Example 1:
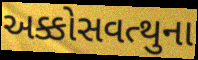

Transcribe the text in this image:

અક્કોસવત્થુના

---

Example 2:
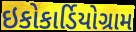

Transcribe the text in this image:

ઇકોકાર્ડિયોગ્રામ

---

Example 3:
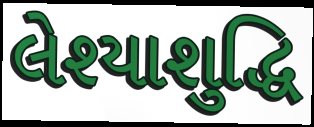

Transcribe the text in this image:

લેશ્યાશુદ્ધિ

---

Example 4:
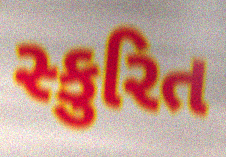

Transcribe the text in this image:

સ્કુરિત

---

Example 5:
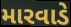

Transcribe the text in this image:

મારવાડે